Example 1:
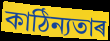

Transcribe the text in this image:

কাঠিন্যতাৰ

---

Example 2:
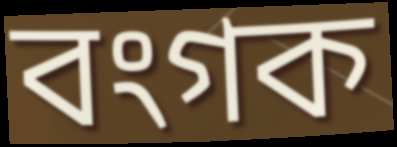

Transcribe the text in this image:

বংগক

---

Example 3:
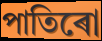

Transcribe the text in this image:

পাতিৰো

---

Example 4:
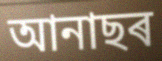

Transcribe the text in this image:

আনাছৰ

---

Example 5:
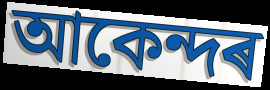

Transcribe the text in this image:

আকেন্দৰ